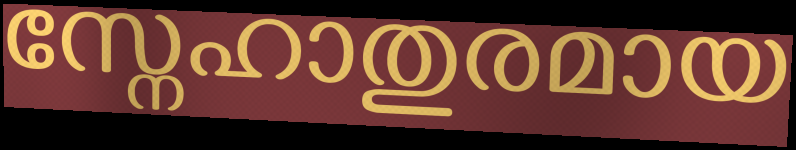
സ്നേഹാതുരമായ